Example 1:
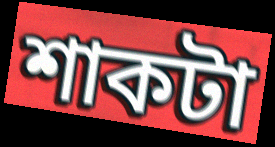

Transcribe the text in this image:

শাকটা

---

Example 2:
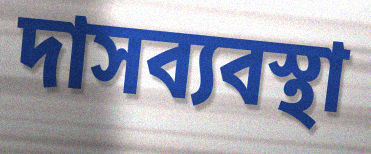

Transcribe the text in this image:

দাসব্যবস্থা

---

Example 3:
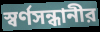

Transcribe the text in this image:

স্বর্ণসন্ধানীর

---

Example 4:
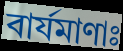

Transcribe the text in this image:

বার্যমাণাঃ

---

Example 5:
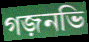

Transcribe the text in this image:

গজ়নভি